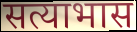
सत्याभास